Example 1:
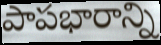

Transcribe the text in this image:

పాపభారాన్ని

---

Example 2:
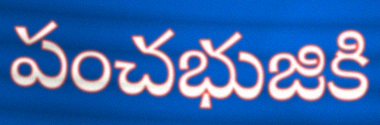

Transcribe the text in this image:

పంచభుజికి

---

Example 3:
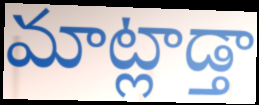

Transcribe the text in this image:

మాట్లాడ్తా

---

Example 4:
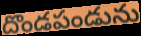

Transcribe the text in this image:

దొండపండును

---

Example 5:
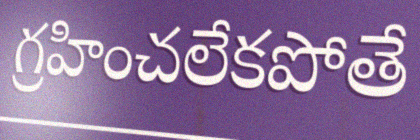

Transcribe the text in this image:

గ్రహించలేకపోతే